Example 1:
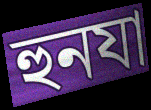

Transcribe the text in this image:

হুনযা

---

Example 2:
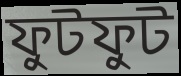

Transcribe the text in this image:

ফুটফুট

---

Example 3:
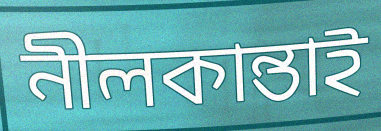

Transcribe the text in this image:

নীলকান্তাই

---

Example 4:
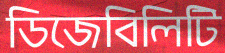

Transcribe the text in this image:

ডিজেবিলিটি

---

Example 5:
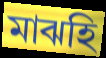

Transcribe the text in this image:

মাঝহি